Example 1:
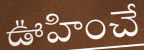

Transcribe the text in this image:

ఊహించే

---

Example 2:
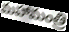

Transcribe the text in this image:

మహామంత్రి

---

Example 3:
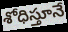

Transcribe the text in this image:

శోధిస్తూనే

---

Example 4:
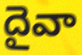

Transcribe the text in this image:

దైవా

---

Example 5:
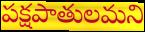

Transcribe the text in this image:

పక్షపాతులమని